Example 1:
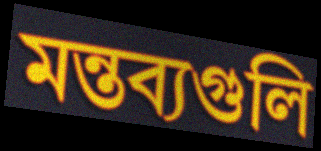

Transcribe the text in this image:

মন্তব্যগুলি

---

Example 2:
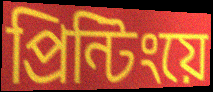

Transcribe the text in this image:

প্রিন্টিংয়ে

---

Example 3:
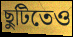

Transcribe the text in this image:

ছুটিতেও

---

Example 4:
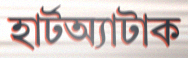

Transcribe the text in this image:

হার্টঅ্যাটাক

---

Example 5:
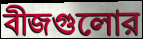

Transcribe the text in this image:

বীজগুলোর